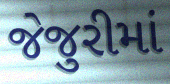
જેજુરીમાં